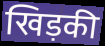
खिड़की